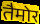
तैमोर